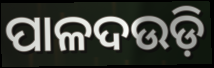
ପାଳଦଉଡ଼ି